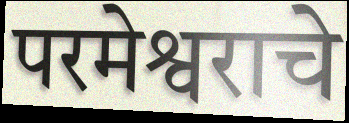
परमेश्वराचे